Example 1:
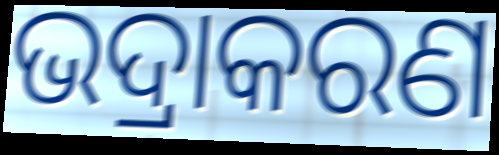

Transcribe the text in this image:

ଭଦ୍ରାକରଣ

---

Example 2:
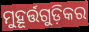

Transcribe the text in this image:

ମୁହୂର୍ତ୍ତଗୁଡ଼ିକର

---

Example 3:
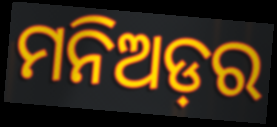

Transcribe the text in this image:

ମନିଅଡ଼ର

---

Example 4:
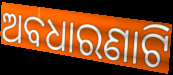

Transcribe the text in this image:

ଅବଧାରଣାଟି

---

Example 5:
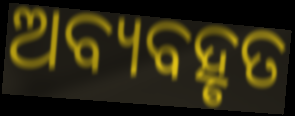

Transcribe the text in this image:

ଅବ୍ୟବହୃତ